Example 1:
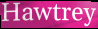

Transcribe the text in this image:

Hawtrey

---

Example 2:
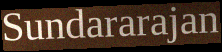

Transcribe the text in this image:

Sundararajan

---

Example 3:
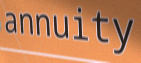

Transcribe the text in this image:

annuity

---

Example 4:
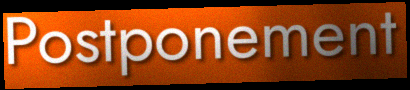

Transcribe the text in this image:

Postponement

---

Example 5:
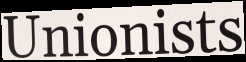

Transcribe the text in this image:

Unionists